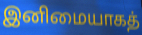
இனிமையாகத்